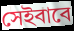
সেইবাবে